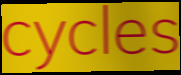
cycles